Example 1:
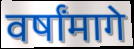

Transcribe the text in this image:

वर्षांमागे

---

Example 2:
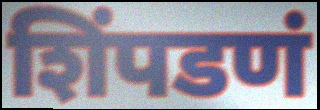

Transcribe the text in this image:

शिंपडणं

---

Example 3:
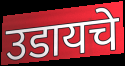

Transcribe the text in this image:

उडायचे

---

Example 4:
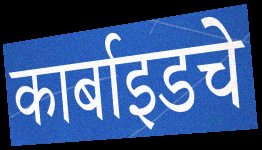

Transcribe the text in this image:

कार्बाइडचे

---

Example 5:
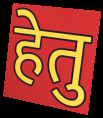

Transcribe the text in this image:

हेतु